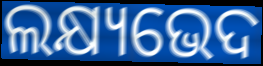
ଲକ୍ଷ୍ୟଭେଦ